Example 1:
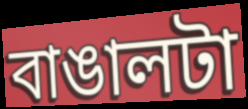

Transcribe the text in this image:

বাঙালটা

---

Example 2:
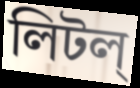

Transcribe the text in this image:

লিটল্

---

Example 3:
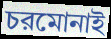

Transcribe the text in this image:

চরমোনাই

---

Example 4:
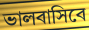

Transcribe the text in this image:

ভালবাসিবে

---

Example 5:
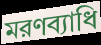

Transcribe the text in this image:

মরণব্যাধি